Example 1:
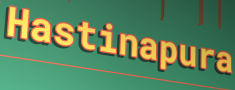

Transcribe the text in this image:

Hastinapura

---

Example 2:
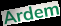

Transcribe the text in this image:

Ardem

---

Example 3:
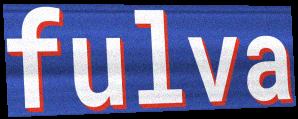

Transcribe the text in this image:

fulva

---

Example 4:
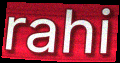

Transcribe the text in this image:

rahi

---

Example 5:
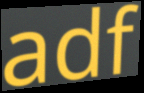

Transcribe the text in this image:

adf